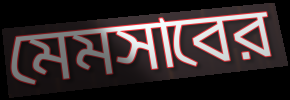
মেমসাবের